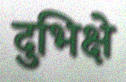
दुभिक्षे